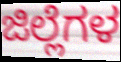
ಜಿಲ್ಲೆಗಳ